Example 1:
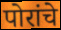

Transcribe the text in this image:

पोरांचे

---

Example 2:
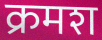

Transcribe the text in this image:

क्रमश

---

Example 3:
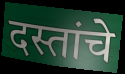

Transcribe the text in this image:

दस्तांचे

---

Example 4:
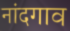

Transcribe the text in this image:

नांदगाव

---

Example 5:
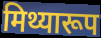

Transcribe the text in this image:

मिथ्यारूप